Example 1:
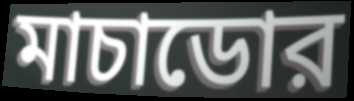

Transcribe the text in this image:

মাচাডোর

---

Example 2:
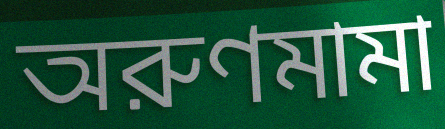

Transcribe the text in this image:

অরুণমামা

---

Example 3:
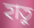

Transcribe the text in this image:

হাতু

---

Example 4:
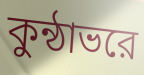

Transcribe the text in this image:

কুন্ঠাভরে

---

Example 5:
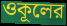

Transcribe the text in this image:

ওকূলের